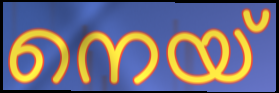
നെയ്